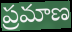
ప్రమాణ